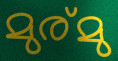
മുര്മു